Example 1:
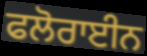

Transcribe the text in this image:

ਫਲੋਰਾਈਨ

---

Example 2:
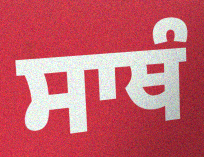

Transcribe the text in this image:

ਸਾਥੰ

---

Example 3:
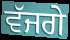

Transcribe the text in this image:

ਵੱਜਗੇ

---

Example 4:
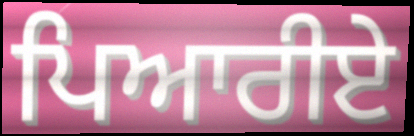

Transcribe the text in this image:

ਪਿਆਰੀਏ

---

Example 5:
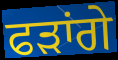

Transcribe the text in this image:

ਫੜਾਂਗੇ